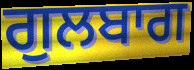
ਗੁਲਬਾਗ